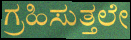
ಗ್ರಹಿಸುತ್ತಲೇ